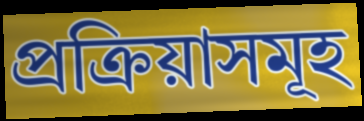
প্ৰক্ৰিয়াসমূহ